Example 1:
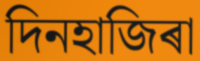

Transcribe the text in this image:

দিনহাজিৰা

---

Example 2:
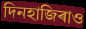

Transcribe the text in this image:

দিনহাজিৰাও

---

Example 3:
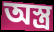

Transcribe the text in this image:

অস্ত্ৰ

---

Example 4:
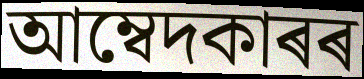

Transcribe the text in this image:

আম্বেদকাৰৰ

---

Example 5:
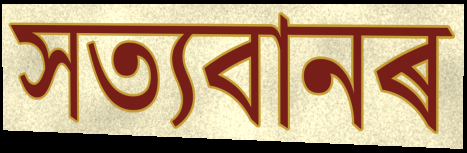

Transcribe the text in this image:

সত্যবানৰ